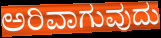
ಅರಿವಾಗುವುದು